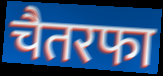
चैतरफा